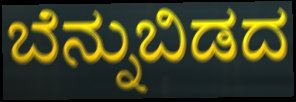
ಬೆನ್ನುಬಿಡದ